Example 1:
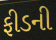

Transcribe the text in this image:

ફીડની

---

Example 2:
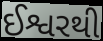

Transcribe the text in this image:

ઈશ્વરથી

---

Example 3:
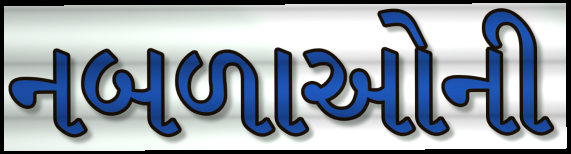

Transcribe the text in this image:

નબળાઓની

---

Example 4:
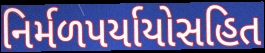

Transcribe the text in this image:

નિર્મળપર્યાયોસહિત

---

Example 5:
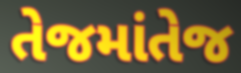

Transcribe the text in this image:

તેજમાંતેજ